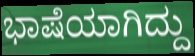
ಭಾಷೆಯಾಗಿದ್ದು